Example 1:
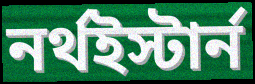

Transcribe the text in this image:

নর্থইস্টার্ন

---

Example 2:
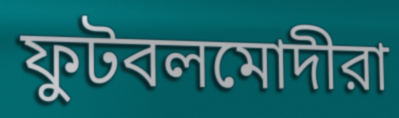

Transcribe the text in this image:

ফুটবলমোদীরা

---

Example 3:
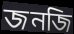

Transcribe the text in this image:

জনজি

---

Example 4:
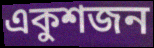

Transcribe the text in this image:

একুশজন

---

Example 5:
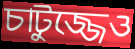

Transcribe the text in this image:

চাটুজ্জেও